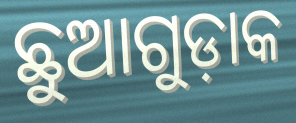
ଛୁଆଗୁଡ଼ାକ